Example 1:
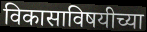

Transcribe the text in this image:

विकासाविषयीच्या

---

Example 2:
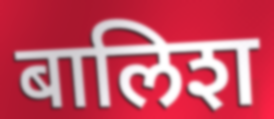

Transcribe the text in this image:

बालिश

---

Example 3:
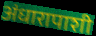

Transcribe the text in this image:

अंधारापाशी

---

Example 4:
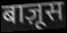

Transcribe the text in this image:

बाज़ूस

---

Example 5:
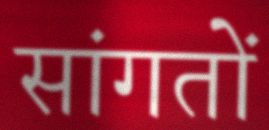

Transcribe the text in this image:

सांगतों